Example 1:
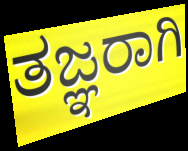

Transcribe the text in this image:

ತಜ್ಞರಾಗಿ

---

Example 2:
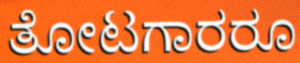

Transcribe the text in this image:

ತೋಟಗಾರರೂ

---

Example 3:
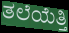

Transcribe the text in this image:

ತಲೆಯೆತ್ತಿ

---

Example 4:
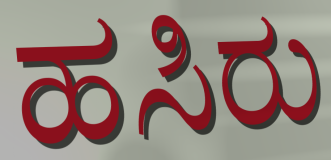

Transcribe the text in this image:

ಹಸಿರು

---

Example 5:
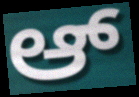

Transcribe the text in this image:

ಆ್